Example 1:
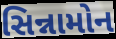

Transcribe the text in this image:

સિન્નામોન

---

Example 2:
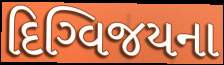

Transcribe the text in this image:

દિગ્વિજયના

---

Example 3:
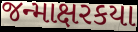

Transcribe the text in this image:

જન્માક્ષરકયા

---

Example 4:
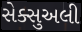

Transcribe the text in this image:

સેક્સુઅલી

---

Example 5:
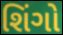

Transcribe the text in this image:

શિંગો